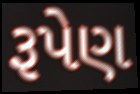
રૂપેણ